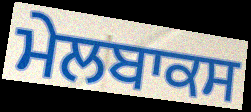
ਮੇਲਬਾਕਸ